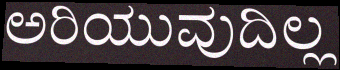
ಅರಿಯುವುದಿಲ್ಲ